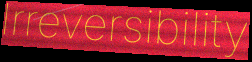
Irreversibility